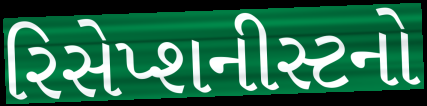
રિસેપ્શનીસ્ટનો